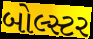
બોલ્સ્ટર